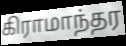
கிராமாந்தர